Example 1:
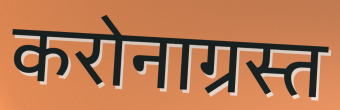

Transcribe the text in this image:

करोनाग्रस्त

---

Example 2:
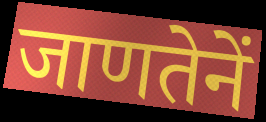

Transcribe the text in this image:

जाणतेनें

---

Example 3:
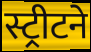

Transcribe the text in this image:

स्ट्रीटने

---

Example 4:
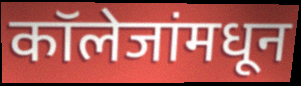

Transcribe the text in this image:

कॉलेजांमधून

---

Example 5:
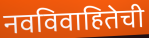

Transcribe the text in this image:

नवविवाहितेची